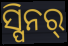
ସ୍ପିନର୍